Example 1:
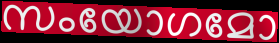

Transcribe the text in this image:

സംയോഗമോ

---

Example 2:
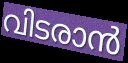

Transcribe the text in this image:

വിടരാൻ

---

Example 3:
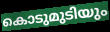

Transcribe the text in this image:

കൊടുമുടിയും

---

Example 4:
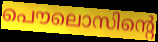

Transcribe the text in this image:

പൌലൊസിന്റെ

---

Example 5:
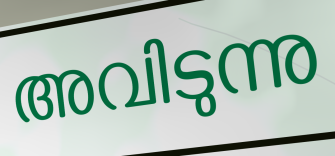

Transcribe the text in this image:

അവിടുന്നു